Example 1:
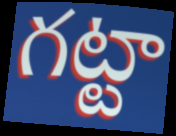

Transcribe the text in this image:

గట్టా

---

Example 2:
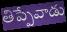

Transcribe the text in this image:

తిప్పేవాడు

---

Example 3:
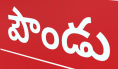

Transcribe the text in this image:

పౌండు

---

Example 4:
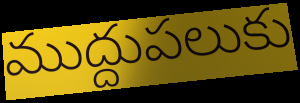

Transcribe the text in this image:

ముద్దుపలుకు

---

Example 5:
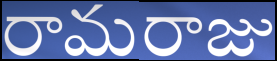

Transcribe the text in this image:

రామరాజు